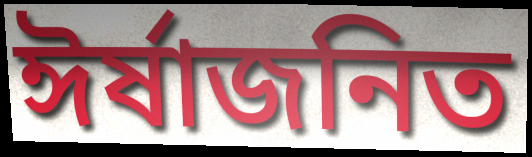
ঈর্ষাজনিত